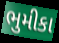
ભુમીકા